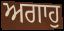
ਅਗਾਹੁ